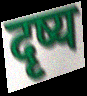
दृष्य